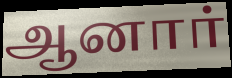
ஆனார்